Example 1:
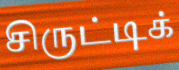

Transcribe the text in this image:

சிருட்டிக்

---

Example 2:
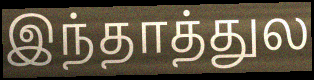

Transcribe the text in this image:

இந்தாத்துல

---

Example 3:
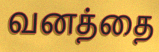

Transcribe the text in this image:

வனத்தை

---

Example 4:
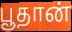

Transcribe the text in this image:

பூதான்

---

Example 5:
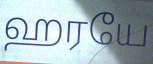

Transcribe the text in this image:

ஹரயே